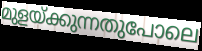
മുളയ്ക്കുന്നതുപോലെ